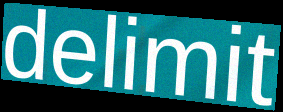
delimit